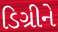
ડિગ્રીને